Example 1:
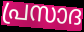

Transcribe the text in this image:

പ്രസാദ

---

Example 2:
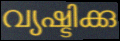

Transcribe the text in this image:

വ്യഷ്ടിക്കു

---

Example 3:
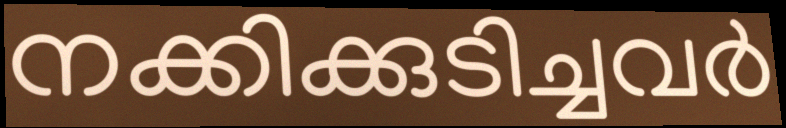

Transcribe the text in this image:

നക്കിക്കുടിച്ചവർ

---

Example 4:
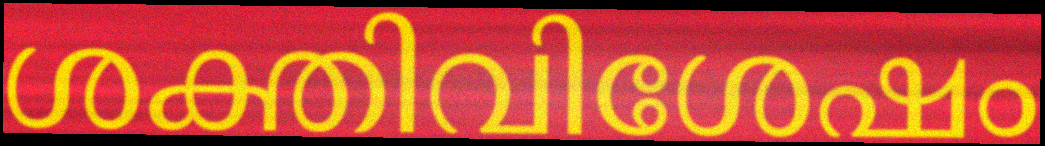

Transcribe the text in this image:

ശക്തിവിശേഷം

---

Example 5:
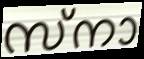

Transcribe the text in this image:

സ്‌നാ